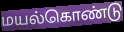
மயல்கொண்டு